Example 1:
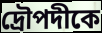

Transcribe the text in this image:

দ্রৌপদীকে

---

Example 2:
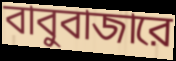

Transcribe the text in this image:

বাবুবাজারে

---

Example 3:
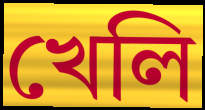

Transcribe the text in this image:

খেলি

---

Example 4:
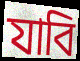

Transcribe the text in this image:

যাবি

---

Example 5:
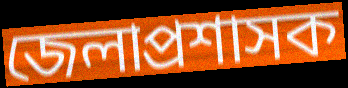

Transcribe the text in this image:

জেলাপ্রশাসক